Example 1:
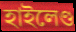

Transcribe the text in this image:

হাইলেণ্ড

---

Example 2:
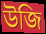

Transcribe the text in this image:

উজি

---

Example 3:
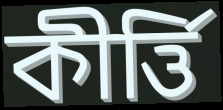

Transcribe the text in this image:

কীৰ্ত্তি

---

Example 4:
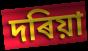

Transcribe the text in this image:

দৰিয়া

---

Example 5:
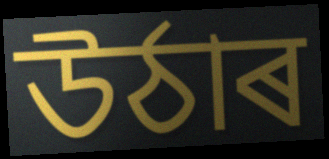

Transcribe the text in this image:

উঠাৰ